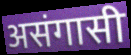
असंगासी